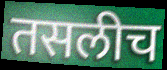
तसलीच